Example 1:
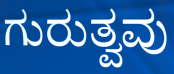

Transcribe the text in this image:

ಗುರುತ್ವವು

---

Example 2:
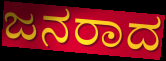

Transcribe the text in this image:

ಜನರಾದ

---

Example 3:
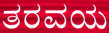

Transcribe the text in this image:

ತರವಯ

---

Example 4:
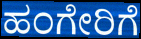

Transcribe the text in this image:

ಹಂಗೇರಿಗೆ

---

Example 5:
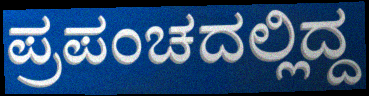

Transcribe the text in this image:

ಪ್ರಪಂಚದಲ್ಲಿದ್ದ